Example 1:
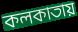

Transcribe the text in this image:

কলকাতায়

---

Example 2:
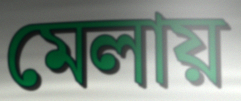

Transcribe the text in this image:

মেলায়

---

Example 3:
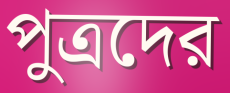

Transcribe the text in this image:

পুত্রদের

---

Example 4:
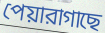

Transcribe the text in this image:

পেয়ারাগাছে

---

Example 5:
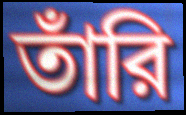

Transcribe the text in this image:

তাঁরি